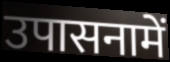
उपासनामें